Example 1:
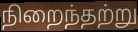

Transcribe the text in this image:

நிறைந்தற்று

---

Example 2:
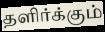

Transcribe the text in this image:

தளிர்க்கும்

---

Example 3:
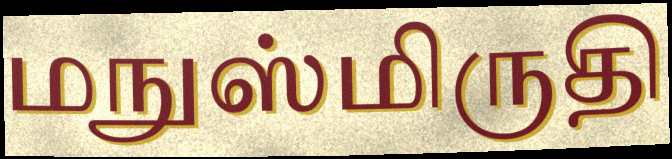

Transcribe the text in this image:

மநுஸ்மிருதி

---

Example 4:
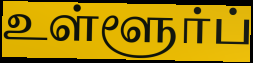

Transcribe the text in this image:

உள்ளூர்ப்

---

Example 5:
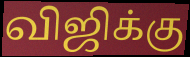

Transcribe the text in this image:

விஜிக்கு